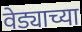
वेड्याच्या